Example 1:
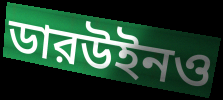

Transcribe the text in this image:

ডারউইনও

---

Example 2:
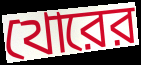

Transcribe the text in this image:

থোরের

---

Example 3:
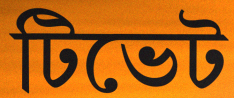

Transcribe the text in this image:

টিভেট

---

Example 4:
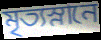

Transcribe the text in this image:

মৃত্যস্নানে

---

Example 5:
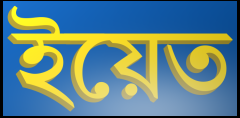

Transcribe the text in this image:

ইয়েত